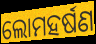
ଲୋମହର୍ଷଣ